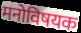
मनोविषयक